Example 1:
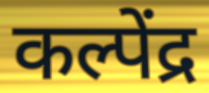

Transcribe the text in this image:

कल्पेंद्र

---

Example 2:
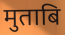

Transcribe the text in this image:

मुताबि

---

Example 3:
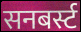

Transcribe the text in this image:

सनबर्स्ट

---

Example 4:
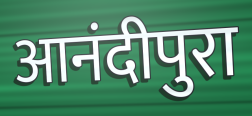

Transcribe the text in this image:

आनंदीपुरा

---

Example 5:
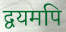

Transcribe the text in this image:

द्वयमपि